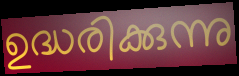
ഉദ്ധരിക്കുന്നു